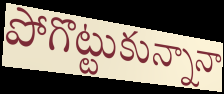
పోగొట్టుకున్నానా